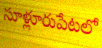
సూళ్లూరుపేటలో